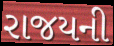
રાજયની